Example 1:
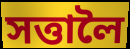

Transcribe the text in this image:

সত্তালৈ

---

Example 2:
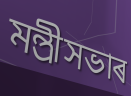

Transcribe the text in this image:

মন্ত্ৰীসভাৰ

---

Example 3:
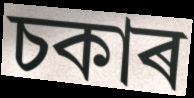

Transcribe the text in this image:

চকাৰ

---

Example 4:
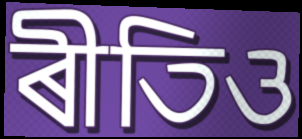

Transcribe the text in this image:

ৰীতিও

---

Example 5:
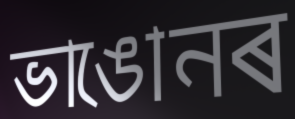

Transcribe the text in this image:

ভাঙোনৰ